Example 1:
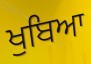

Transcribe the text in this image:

ਖੁਬਿਆ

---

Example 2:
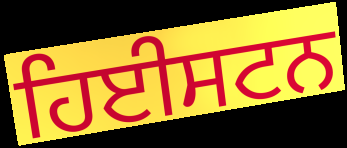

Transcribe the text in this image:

ਹਿਈਸਟਨ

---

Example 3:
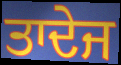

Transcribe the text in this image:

ਤਾਦੇਜ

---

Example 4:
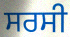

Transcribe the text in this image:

ਸਰਸੀ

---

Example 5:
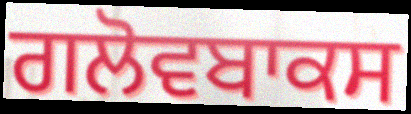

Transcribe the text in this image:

ਗਲੋਵਬਾਕਸ